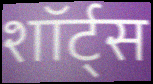
शॉर्ट्स